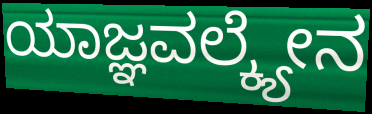
ಯಾಜ್ಞವಲ್ಕ್ಯೇನ